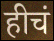
हीचं